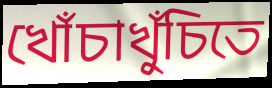
খোঁচাখুঁচিতে